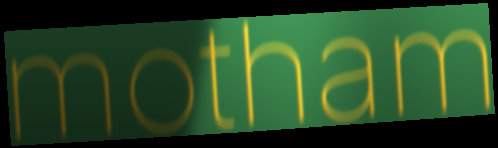
motham